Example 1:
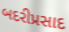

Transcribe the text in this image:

બદરીપ્રસાદ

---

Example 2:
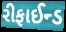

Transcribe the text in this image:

રીફાઈન્ડ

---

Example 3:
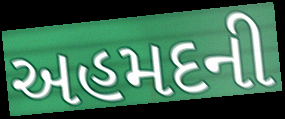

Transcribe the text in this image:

અહમદની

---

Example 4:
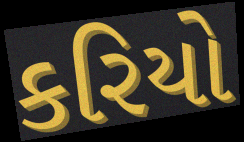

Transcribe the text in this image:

કરિયો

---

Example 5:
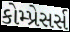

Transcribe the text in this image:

કોમ્પ્રેસર્સ